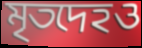
মৃতদেহও